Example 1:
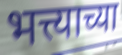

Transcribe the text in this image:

भत्त्याच्या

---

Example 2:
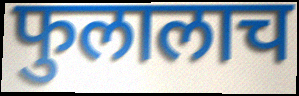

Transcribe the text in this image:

फुलालाच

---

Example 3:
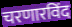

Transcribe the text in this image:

चरणारविंद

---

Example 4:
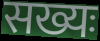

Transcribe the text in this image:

सख्यः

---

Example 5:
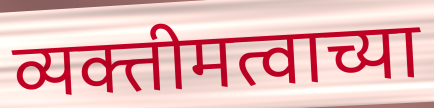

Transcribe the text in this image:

व्यक्तीमत्वाच्या